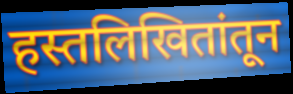
हस्तलिखितांतून